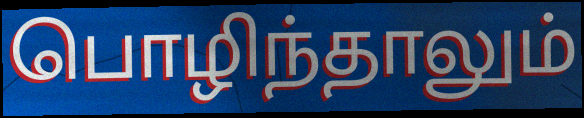
பொழிந்தாலும்